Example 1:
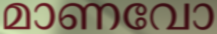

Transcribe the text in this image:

മാണവോ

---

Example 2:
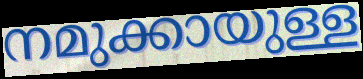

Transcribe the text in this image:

നമുക്കായുള്ള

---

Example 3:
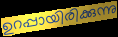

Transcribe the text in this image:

ഉറപ്പായിരിക്കുന്നു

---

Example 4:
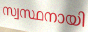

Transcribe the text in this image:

സ്വസ്ഥനായി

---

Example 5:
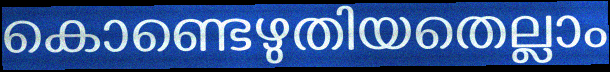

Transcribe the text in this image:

കൊണ്ടെഴുതിയതെല്ലാം